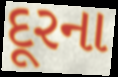
દૂરના